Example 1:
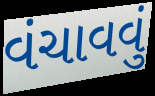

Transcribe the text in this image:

વંચાવવું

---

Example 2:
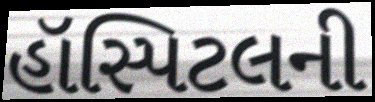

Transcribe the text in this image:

હૉસ્પિટલની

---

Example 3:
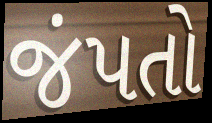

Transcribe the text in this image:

જંપતો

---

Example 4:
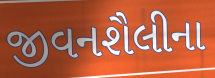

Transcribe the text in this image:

જીવનશૈલીના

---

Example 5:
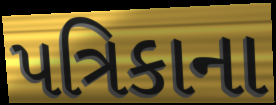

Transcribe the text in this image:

પત્રિકાના